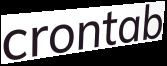
crontab